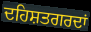
ਦਹਿਸ਼ਤਗਰਦਾਂ